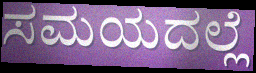
ಸಮಯದಲ್ಲೆ